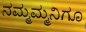
ನಮ್ಮಮ್ಮನಿಗೂ